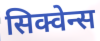
सिक्वेन्स